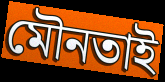
মৌনতাই